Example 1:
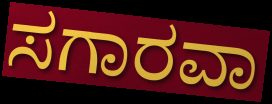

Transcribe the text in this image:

ಸಗಾರವಾ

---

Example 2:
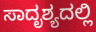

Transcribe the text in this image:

ಸಾದೃಶ್ಯದಲ್ಲಿ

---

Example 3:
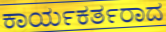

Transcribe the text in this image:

ಕಾರ್ಯಕರ್ತರಾದ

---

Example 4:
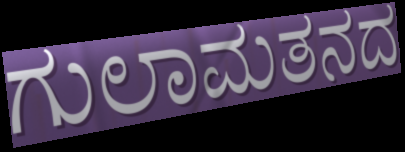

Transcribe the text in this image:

ಗುಲಾಮತನದ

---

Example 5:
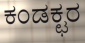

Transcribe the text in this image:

ಕಂಡಕ್ಟರ